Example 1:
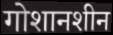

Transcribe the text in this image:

गोशानशीन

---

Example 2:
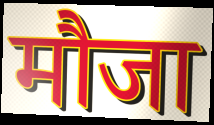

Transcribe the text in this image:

मौजा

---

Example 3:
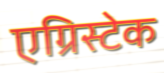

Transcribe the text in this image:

एग्रिस्टेक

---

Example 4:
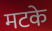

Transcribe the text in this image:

मटके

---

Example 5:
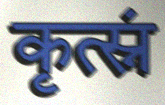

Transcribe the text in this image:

कृत्स्नं